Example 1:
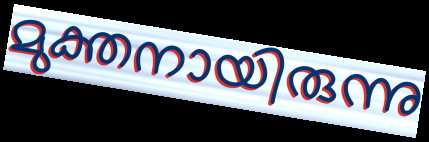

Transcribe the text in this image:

മുക്തനായിരുന്നു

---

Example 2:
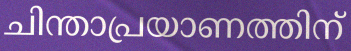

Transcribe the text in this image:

ചിന്താപ്രയാണത്തിന്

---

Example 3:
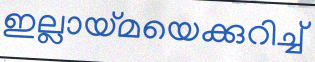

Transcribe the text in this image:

ഇല്ലായ്മയെക്കുറിച്ച്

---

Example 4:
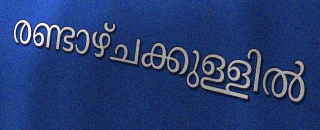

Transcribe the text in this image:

രണ്ടാഴ്ചക്കുള്ളിൽ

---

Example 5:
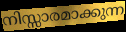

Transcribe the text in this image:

നിസ്സാരമാക്കുന്ന